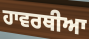
ਹਾਵਰਥੀਆ